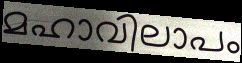
മഹാവിലാപം